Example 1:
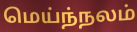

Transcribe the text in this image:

மெய்ந்நலம்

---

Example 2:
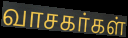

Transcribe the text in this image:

வாசகர்கள்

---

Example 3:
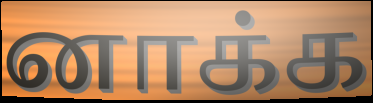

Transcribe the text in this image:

னாக்க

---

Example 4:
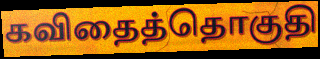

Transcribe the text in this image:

கவிதைத்தொகுதி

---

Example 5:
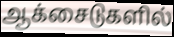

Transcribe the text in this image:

ஆக்சைடுகளில்